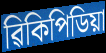
ৱিকিপিডিয়া